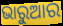
ଭାରୁଆର